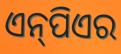
ଏନ୍‌ପିଏର